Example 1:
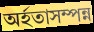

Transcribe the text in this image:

অৰ্হতাসম্পন্ন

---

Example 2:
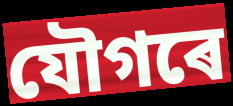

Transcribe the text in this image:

যৌগৰে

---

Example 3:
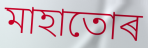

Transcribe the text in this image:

মাহাতোৰ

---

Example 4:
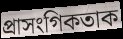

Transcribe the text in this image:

প্ৰাসংগিকতাক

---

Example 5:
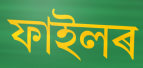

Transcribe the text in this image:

ফাইলৰ